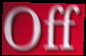
Off